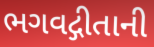
ભગવદ્ગીતાની